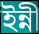
ইন্নী